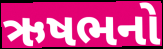
ઋષભનો